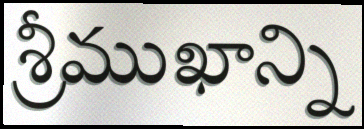
శ్రీముఖాన్ని